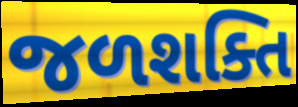
જળશક્તિ